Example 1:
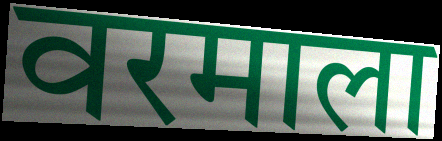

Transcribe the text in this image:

वरमाला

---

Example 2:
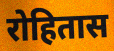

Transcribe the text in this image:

रोहितास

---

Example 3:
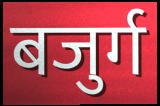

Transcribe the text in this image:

बजुर्ग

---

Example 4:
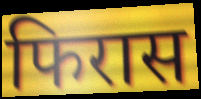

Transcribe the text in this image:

फिरास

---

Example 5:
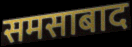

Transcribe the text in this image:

समसाबाद